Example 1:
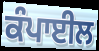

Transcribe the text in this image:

ਕੰਪਾਈਲ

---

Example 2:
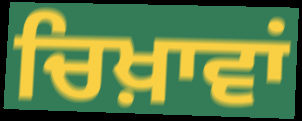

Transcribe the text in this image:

ਚਿਖ਼ਾਵਾਂ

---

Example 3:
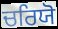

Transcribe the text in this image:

ਚਰਿਯੋ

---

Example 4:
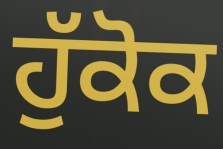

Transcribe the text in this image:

ਹੁੱਕੋਕ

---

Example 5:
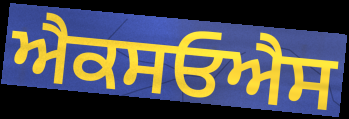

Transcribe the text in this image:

ਐਕਸਓਐਸ